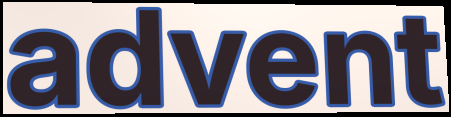
advent